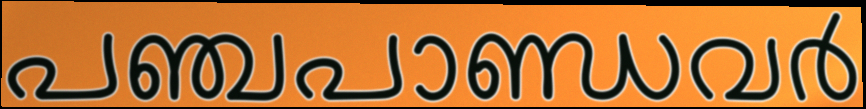
പഞ്ചപാണ്ഡവർ